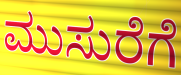
ಮುಸುರೆಗೆ